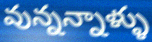
వున్నన్నాళ్ళు